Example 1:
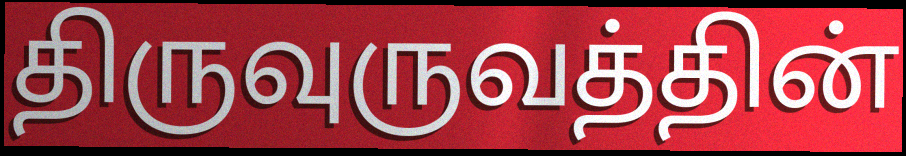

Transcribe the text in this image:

திருவுருவத்தின்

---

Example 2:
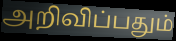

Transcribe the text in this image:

அறிவிப்பதும்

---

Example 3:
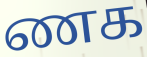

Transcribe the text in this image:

ணக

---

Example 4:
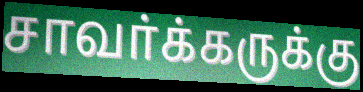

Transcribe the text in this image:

சாவர்க்கருக்கு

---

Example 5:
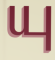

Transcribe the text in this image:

யு